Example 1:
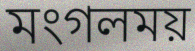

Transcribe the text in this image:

মংগলময়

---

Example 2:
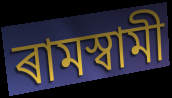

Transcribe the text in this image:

ৰামস্বামী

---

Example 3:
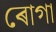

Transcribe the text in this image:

ৰোগা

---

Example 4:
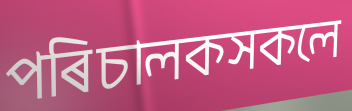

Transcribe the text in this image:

পৰিচালকসকলে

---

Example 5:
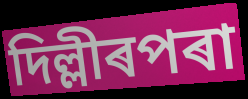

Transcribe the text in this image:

দিল্লীৰপৰা